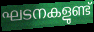
ഘടനകളുണ്ട്